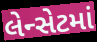
લેન્સેટમાં